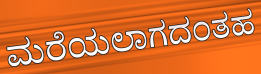
ಮರೆಯಲಾಗದಂತಹ